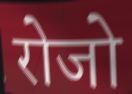
रोजो